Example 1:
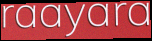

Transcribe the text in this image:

raayara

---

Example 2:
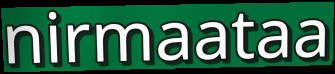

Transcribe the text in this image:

nirmaataa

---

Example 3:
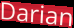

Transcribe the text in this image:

Darian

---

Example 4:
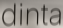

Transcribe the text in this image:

dinta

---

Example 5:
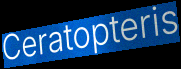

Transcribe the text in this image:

Ceratopteris